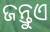
ଜନ୍ତୁଏ